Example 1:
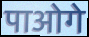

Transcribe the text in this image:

पाओगे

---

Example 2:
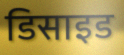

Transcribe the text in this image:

डिसाइड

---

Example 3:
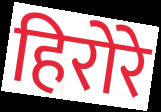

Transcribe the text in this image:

हिरोरे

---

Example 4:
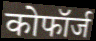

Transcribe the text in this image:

कोफॉर्ज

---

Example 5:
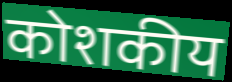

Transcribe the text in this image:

कोशकीय